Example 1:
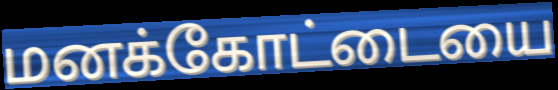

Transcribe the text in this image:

மனக்கோட்டையை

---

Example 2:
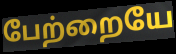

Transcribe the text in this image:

பேற்றையே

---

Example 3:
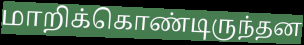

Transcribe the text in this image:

மாறிக்கொண்டிருந்தன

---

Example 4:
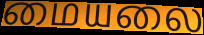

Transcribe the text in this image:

மையலை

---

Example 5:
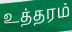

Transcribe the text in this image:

உத்தரம்